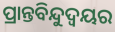
ପ୍ରାନ୍ତବିନ୍ଦୁଦ୍ଵୟର